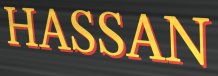
HASSAN